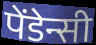
पेंडेन्सी